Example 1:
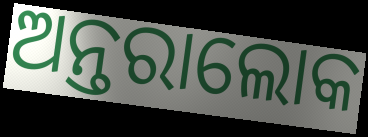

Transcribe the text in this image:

ଅନ୍ତରାଲୋକ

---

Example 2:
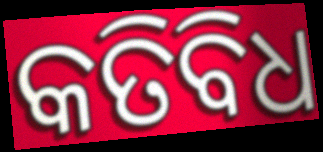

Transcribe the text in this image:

କତିବିଧ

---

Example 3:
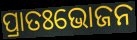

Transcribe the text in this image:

ପ୍ରାତଃଭୋଜନ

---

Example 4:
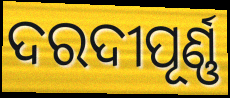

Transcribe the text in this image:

ଦରଦୀପୂର୍ଣ୍ଣ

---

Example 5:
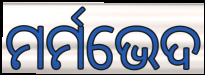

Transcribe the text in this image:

ମର୍ମଭେଦ